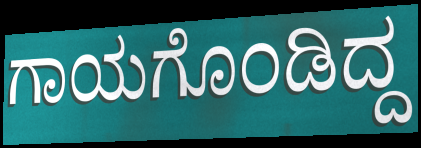
ಗಾಯಗೊಂಡಿದ್ದ